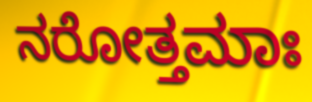
ನರೋತ್ತಮಾಃ